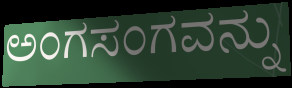
ಅಂಗಸಂಗವನ್ನು